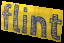
flint